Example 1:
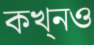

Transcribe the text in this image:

কখ্নও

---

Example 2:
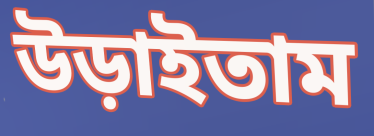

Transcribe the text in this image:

উড়াইতাম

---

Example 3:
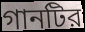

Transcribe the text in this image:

গানটির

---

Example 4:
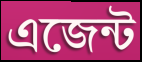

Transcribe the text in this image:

এজেন্ট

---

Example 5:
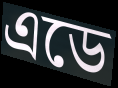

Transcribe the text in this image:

এডে